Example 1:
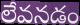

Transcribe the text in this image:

లేవనడం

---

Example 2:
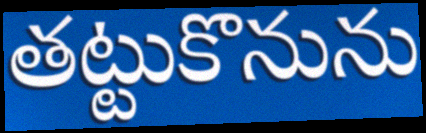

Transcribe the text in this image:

తట్టుకొనును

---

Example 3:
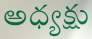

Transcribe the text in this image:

అధ్యక్షు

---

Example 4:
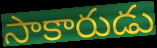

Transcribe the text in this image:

సాకారుడు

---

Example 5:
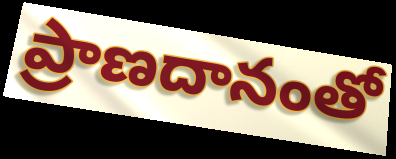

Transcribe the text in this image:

ప్రాణదానంతో